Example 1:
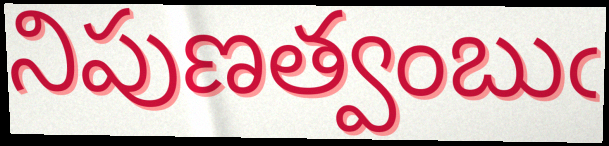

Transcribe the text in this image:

నిపుణత్వంబుఁ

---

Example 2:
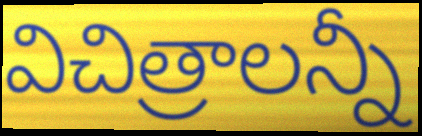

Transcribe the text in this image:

విచిత్రాలన్నీ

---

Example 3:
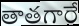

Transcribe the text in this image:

తాతగారే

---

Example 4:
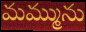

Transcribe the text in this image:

మమ్మును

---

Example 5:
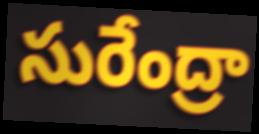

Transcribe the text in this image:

సురేంద్రా